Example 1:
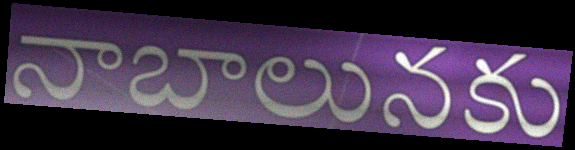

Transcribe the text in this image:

నాబాలునకు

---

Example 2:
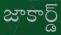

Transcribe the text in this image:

జాకార్డ్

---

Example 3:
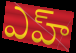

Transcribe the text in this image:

ఎహ్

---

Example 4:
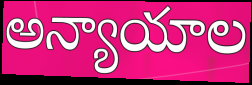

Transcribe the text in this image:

అన్యాయాల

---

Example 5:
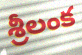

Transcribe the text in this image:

శ్రీలంక